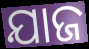
ଯାଜ